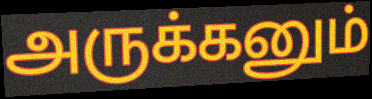
அருக்கனும்